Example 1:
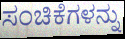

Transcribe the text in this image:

ಸಂಚಿಕೆಗಳನ್ನು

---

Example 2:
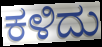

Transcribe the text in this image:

ಕಳಿದು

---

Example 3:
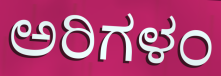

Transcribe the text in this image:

ಅರಿಗಳಂ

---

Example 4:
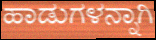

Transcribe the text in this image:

ಹಾಡುಗಳನ್ನಾಗಿ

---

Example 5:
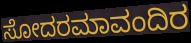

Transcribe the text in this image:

ಸೋದರಮಾವಂದಿರ